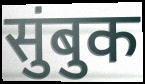
सुंबुक